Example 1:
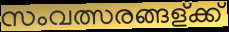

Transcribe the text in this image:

സംവത്സരങ്ങള്ക്ക്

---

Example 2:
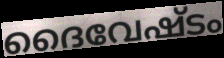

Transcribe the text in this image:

ദൈവേഷ്ടം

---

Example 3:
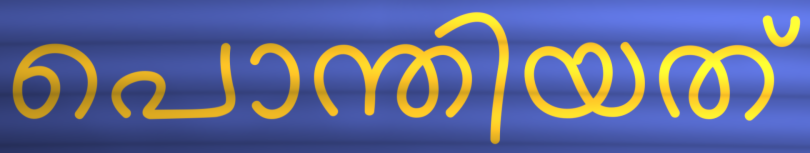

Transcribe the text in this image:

പൊന്തിയത്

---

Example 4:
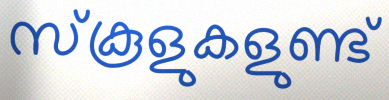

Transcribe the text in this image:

സ്കൂളുകളുണ്ട്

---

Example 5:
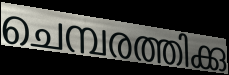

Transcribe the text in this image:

ചെമ്പരത്തിക്കു